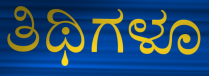
ತಿಥಿಗಳೂ